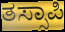
ತಸ್ಸಾಪಿ